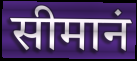
सीमानं